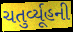
ચતુર્વ્યૂહની